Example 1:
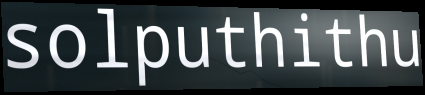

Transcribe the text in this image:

solputhithu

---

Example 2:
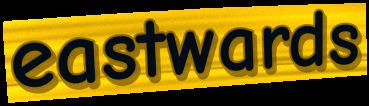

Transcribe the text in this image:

eastwards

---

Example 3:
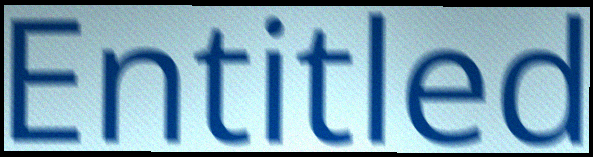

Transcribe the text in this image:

Entitled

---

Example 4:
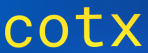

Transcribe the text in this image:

cotx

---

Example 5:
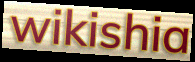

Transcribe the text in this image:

wikishia